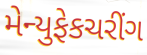
મેન્યુફેકચરીંગ